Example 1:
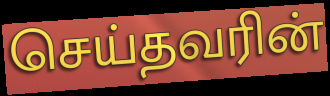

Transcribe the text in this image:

செய்தவரின்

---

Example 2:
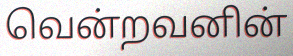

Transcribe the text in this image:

வென்றவனின்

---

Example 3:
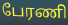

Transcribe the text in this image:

பேரணி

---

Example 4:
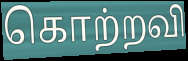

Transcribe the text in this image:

கொற்றவி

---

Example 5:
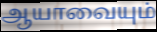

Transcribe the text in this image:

ஆயாவையும்